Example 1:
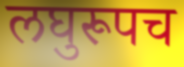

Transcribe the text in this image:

लघुरूपच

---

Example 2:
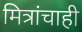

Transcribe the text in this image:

मित्रांचाही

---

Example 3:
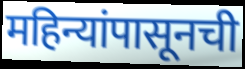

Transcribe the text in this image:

महिन्यांपासूनची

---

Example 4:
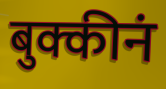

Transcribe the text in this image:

बुक्कीनं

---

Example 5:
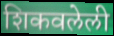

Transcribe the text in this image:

शिकवलेली